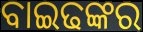
ବାଇଢଙ୍କର